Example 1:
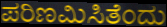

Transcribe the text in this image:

ಪರಿಣಮಿಸಿತೆಂದು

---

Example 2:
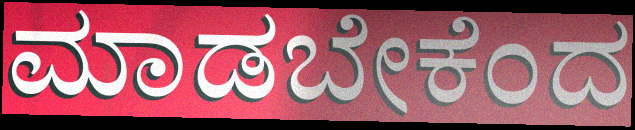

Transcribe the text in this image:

ಮಾಡಬೇಕೆಂದ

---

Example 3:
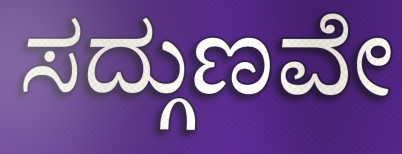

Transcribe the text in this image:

ಸದ್ಗುಣವೇ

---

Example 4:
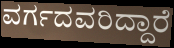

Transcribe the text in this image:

ವರ್ಗದವರಿದ್ದಾರೆ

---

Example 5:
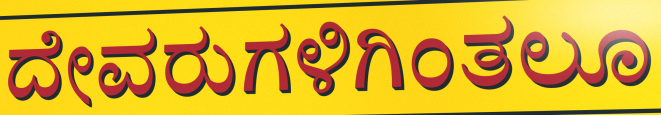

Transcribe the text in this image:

ದೇವರುಗಳಿಗಿಂತಲೂ